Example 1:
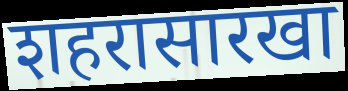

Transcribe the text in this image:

शहरासारखा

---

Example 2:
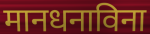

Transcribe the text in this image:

मानधनाविना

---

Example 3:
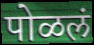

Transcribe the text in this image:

पोळलं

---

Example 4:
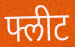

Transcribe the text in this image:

फ्लीट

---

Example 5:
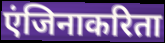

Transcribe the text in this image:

एंजिनाकरिता